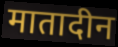
मातादीन